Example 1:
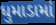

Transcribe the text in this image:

ધુમાડામાં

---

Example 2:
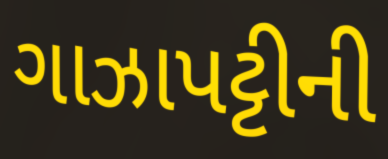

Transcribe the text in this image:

ગાઝાપટ્ટીની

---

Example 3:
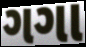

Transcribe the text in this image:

ગગા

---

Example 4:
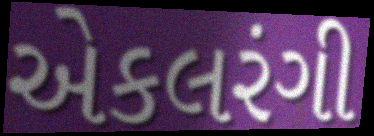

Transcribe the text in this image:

એકલરંગી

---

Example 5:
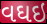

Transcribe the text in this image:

વઘઇ